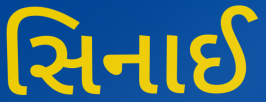
સિનાઈ